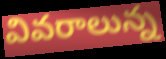
వివరాలున్న